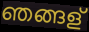
ഞങ്ങള്